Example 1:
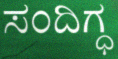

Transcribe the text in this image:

ಸಂದಿಗ್ಧ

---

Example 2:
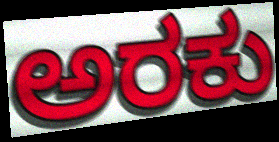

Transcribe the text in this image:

ಅರಕು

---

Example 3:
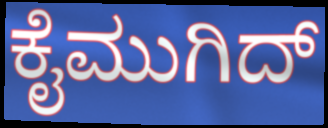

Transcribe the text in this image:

ಕೈಮುಗಿದ್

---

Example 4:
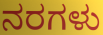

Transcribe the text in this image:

ನರಗಳು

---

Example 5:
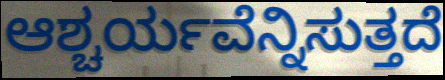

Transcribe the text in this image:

ಆಶ್ಚರ್ಯವೆನ್ನಿಸುತ್ತದೆ